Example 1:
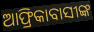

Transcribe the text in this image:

ଆଫ୍ରିକାବାସୀଙ୍କ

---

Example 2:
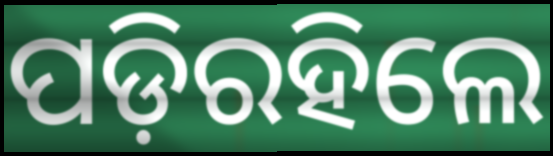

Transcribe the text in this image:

ପଡ଼ିରହିଲେ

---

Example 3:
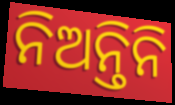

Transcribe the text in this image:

ନିଅନ୍ତିନି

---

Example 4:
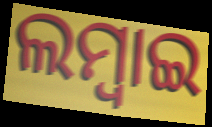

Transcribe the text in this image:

ଲମ୍ବାଇ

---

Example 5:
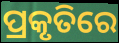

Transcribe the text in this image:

ପ୍ରକୃତିରେ